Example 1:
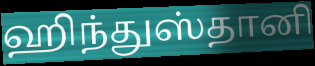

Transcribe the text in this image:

ஹிந்துஸ்தானி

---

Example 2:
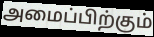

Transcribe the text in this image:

அமைப்பிற்கும்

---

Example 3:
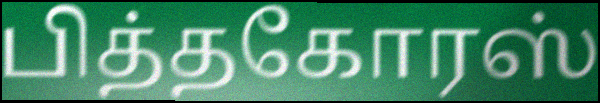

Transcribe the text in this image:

பித்தகோரஸ்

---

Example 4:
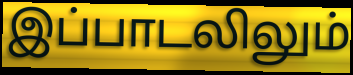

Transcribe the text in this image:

இப்பாடலிலும்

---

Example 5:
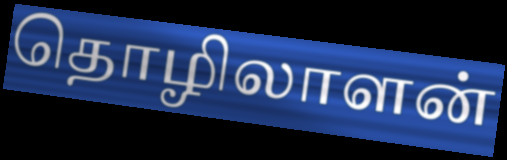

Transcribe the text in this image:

தொழிலாளன்